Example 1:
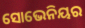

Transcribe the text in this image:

ସୋଭେନିୟର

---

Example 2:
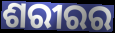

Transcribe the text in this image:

ଶରୀରର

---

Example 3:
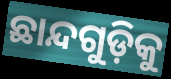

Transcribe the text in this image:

ଛାନ୍ଦଗୁଡ଼ିକୁ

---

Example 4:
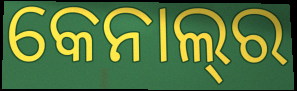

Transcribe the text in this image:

କେନାଲ୍‍ର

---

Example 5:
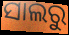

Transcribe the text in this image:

ସାଲରୁ